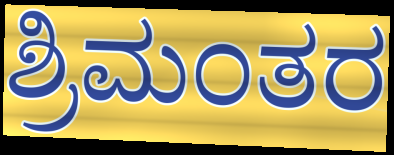
ಶ್ರಿಮಂತರ